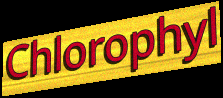
Chlorophyl